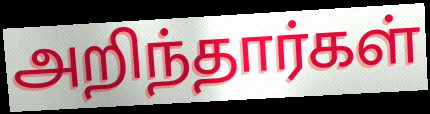
அறிந்தார்கள்